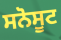
ਸਨੋਸੂਟ